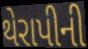
થેરાપીની